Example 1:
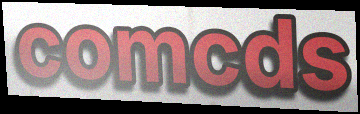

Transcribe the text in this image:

comcds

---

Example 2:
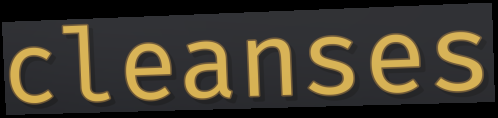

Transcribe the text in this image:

cleanses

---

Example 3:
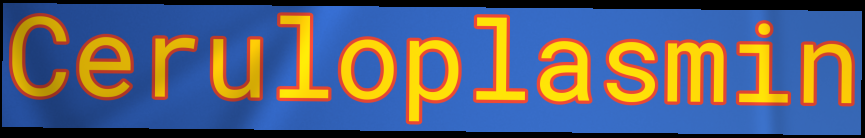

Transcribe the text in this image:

Ceruloplasmin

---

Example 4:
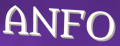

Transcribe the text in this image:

ANFO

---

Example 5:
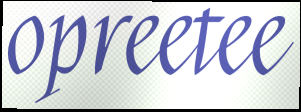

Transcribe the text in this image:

opreetee